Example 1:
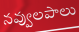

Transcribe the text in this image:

నవ్వులపాలు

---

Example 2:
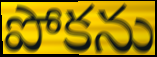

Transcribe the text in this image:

పోకను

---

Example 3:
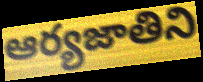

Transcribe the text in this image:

ఆర్యజాతిని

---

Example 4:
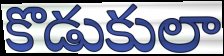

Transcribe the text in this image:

కొడుకులా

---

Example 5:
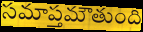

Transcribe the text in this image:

సమాప్తమౌతుంది